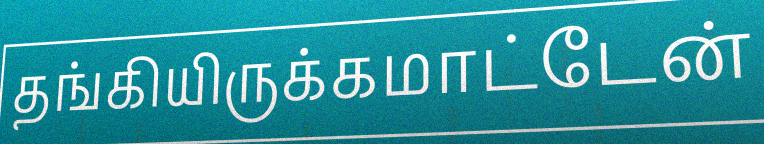
தங்கியிருக்கமாட்டேன்